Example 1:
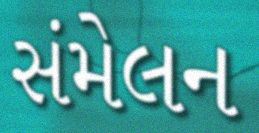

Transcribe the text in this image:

સંમેલન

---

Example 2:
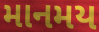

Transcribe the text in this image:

માનમય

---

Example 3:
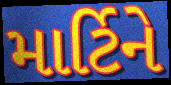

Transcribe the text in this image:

માર્ટિને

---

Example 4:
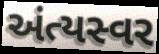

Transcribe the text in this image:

અંત્યસ્વર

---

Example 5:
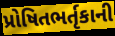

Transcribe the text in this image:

પ્રોષિતભર્તૃકાની